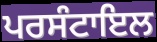
ਪਰਸੰਟਾਇਲ